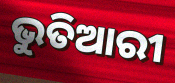
ଭୁତିଆରୀ